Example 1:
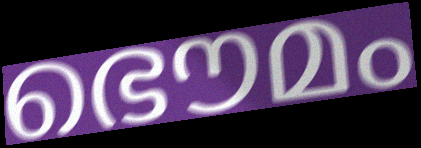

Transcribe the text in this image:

ഭൌമം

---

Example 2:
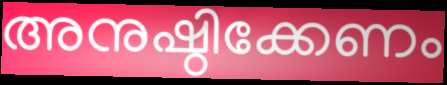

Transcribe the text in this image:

അനുഷ്ഠിക്കേണം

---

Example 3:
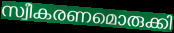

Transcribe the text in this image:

സ്വീകരണമൊരുക്കി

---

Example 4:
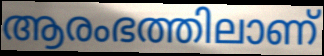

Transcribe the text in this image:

ആരംഭത്തിലാണ്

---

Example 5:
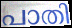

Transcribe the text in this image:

പാതി